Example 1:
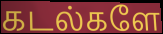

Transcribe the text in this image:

கடல்களே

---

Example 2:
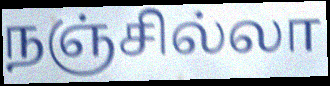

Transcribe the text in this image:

நஞ்சில்லா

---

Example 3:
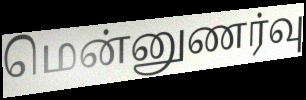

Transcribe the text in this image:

மென்னுணர்வு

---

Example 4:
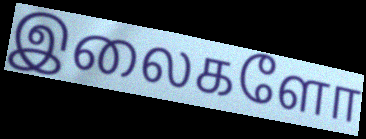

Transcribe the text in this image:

இலைகளோ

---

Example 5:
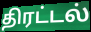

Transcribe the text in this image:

திரட்டல்